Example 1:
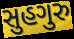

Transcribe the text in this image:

સુહગુરુ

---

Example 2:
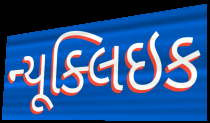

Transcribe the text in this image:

ન્યૂક્લિઇક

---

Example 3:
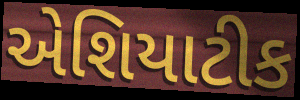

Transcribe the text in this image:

એશિયાટીક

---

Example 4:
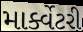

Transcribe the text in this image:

માર્ક્વેટરી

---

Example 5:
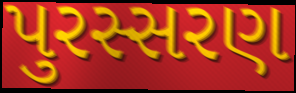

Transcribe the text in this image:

પુરસ્સરણ